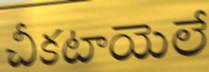
చీకటాయెలే